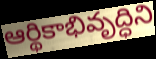
ఆర్థికాభివృద్ధిని